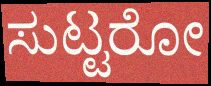
ಸುಟ್ಟರೋ